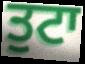
ਤੁਟਾ